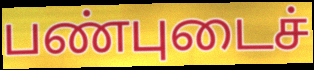
பண்புடைச்